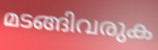
മടങ്ങിവരുക